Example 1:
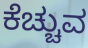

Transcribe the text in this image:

ಕೆಚ್ಚುವ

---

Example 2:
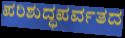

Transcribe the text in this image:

ಪರಿಶುದ್ಧಪರ್ವತದ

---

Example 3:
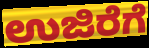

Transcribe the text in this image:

ಉಜಿರೆಗೆ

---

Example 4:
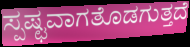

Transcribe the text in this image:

ಸ್ಪಷ್ಟವಾಗತೊಡಗುತ್ತದೆ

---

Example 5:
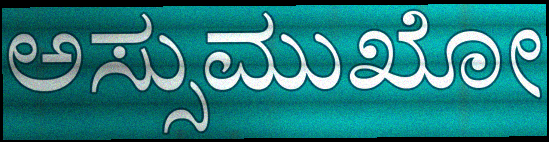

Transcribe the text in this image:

ಅಸ್ಸುಮುಖೋ